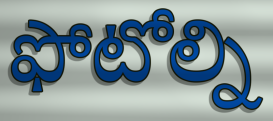
ఫోటోల్ని